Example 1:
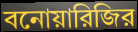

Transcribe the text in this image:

বনোয়ারিজির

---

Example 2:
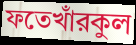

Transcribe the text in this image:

ফতেখাঁরকুল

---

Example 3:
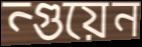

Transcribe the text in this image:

ন্গুয়েন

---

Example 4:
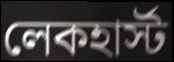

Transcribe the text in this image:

লেকহার্স্ট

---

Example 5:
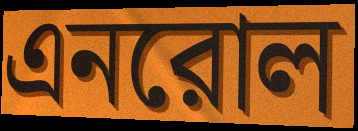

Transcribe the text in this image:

এনরোল